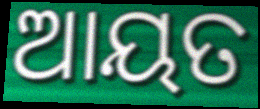
ଆୟତ